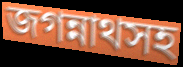
জগন্নাথসহ